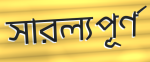
সারল্যপূর্ণ